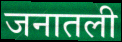
जनातली